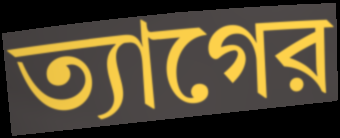
ত্যাগের